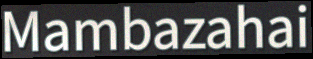
Mambazahai